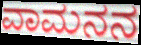
ವಾಮನನ